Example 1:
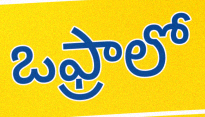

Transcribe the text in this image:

ఒఫ్రాలో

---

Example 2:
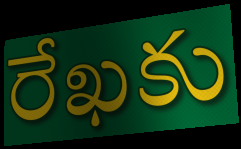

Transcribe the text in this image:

రేఖకు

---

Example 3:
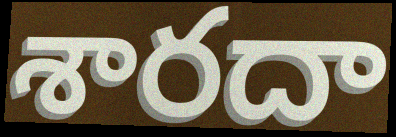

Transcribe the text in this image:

శారదా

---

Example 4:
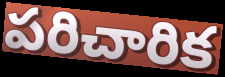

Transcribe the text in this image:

పరిచారిక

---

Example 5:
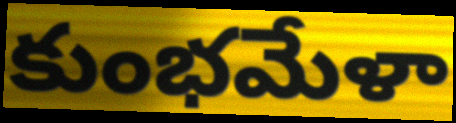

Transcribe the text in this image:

కుంభమేళా